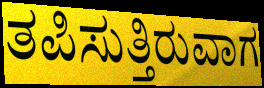
ತಪಿಸುತ್ತಿರುವಾಗ